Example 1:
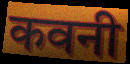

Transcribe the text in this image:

कवनी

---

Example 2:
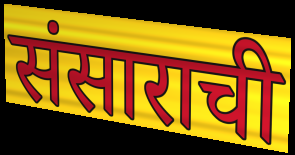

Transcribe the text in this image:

संसाराची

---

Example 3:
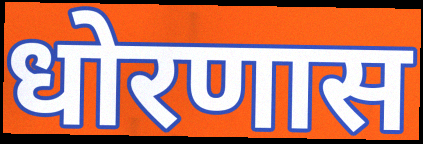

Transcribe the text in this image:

धोरणास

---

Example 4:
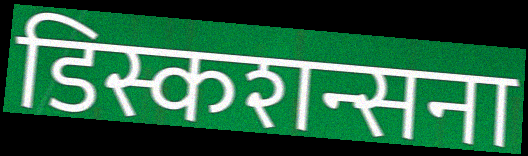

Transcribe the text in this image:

डिस्कशन्सना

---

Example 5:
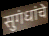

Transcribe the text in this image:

सुगंधांचे